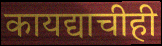
कायद्याचीही